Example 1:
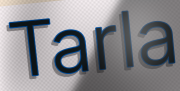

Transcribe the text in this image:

Tarla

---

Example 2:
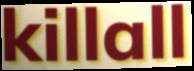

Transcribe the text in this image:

killall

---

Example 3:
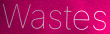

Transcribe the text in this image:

Wastes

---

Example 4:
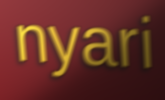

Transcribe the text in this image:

nyari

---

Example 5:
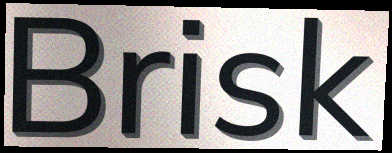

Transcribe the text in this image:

Brisk